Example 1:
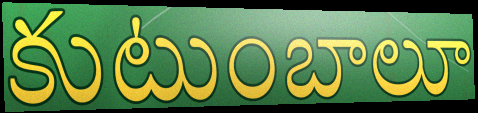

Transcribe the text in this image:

కుటుంబాలూ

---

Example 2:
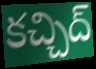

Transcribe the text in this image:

కచ్చిద్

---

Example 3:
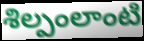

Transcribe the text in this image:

శిల్పంలాంటి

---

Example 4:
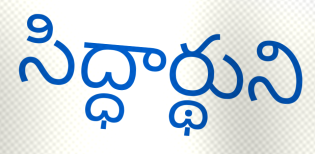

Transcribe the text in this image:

సిద్ధార్థుని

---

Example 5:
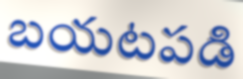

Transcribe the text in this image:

బయటపడి